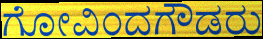
ಗೋವಿಂದಗೌಡರು